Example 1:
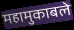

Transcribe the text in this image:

महामुकाबले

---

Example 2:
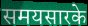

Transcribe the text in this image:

समयसारके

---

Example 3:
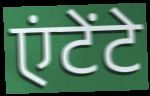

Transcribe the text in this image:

एंटेंटे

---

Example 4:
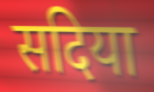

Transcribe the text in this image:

सदिया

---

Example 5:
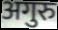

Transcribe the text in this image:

अगुरु